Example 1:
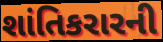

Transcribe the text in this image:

શાંતિકરારની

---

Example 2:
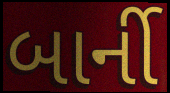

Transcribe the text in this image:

બાર્ની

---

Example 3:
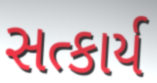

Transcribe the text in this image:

સત્કાર્ય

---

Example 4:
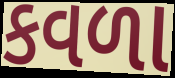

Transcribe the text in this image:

કવળા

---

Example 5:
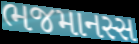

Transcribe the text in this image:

ભજમાનસ્સ